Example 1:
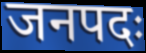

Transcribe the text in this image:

जनपदः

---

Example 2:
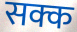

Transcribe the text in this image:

सक्क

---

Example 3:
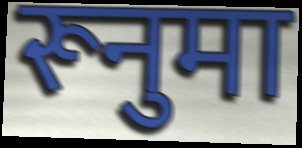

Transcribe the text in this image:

रूनुमा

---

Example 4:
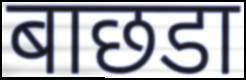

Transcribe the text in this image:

बाछडा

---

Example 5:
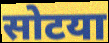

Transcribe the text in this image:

सोटया